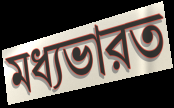
মধ্যভারত